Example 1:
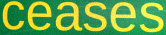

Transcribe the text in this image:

ceases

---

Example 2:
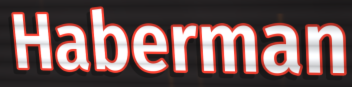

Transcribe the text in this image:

Haberman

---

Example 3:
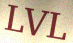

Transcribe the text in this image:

LVL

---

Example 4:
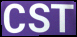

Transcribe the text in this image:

CST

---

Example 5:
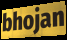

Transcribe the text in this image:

bhojan